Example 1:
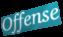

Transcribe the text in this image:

Offense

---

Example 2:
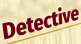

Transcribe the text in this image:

Detective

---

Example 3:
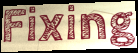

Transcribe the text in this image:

Fixing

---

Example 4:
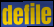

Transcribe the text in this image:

defile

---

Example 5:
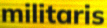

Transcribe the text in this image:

militaris